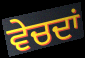
ਵੇਚਦਾਂ